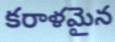
కరాళమైన